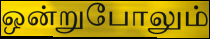
ஒன்றுபோலும்